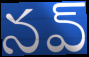
నవ్